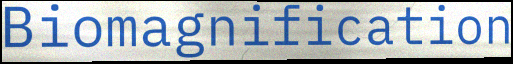
Biomagnification